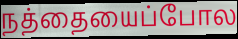
நத்தையைப்போல